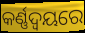
କର୍ଣ୍ଣଦ୍ୱୟରେ